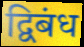
द्विबंध